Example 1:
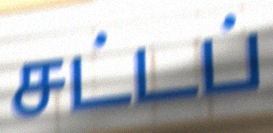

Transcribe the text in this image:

சட்டப்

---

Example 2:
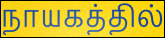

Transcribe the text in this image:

நாயகத்தில்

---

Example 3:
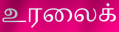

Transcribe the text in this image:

உரலைக்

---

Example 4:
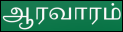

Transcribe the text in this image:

ஆரவாரம்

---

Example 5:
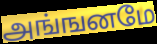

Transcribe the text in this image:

அங்ஙனமே